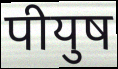
पीयुष